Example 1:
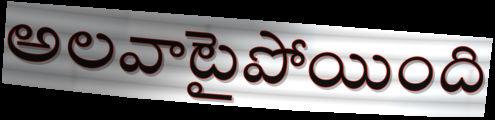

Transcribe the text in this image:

అలవాటైపోయింది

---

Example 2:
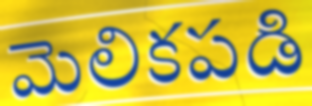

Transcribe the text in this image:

మెలికపడి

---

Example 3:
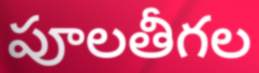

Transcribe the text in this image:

పూలతీగల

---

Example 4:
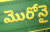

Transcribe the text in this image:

మొరోనై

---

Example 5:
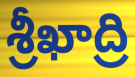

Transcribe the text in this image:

శ్రీఖాద్రి